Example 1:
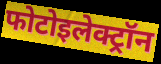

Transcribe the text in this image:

फोटोइलेक्ट्रॉन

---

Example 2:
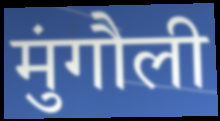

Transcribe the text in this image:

मुंगौली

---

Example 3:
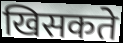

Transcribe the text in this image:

खिसकते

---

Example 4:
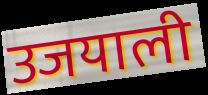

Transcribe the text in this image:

उजयाली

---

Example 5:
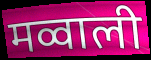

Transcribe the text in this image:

मव्वाली